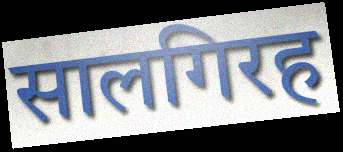
सालगिरह